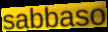
sabbaso